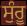
ਸੁੰਰੂ